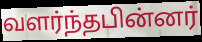
வளர்ந்தபின்னர்